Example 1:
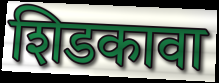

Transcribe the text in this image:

शिडकावा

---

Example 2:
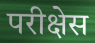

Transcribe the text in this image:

परीक्षेस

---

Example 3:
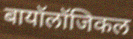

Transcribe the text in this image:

बायॉलॉजिकल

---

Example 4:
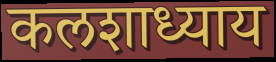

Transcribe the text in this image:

कलशाध्याय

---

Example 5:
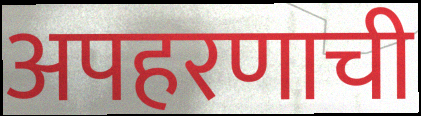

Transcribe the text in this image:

अपहरणाची